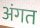
अंगत